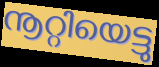
നൂറ്റിയെട്ടു